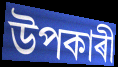
উপকাৰী